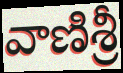
వాణిశ్రీ